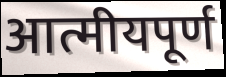
आत्मीयपूर्ण